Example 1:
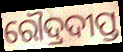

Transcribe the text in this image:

ରୌଦ୍ରଦୀପ୍ତ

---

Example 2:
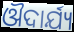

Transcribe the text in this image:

ଔଦାର୍ଯ୍ୟ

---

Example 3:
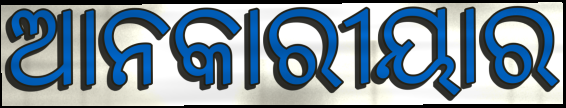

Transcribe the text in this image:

ଆନକାରୀୟାର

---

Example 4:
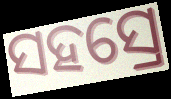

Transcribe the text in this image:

ସହସ୍ରେ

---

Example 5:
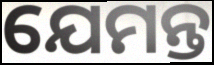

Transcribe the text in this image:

ଯେମନ୍ତ